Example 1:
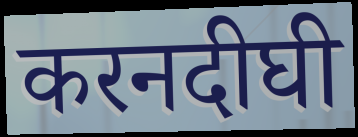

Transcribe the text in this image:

करनदीघी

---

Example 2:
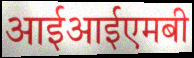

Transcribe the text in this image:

आईआईएमबी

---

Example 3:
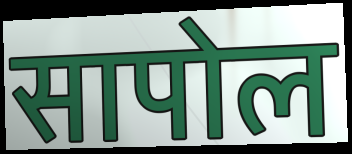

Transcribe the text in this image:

सापोल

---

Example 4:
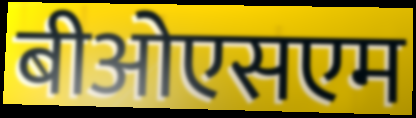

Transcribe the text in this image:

बीओएसएम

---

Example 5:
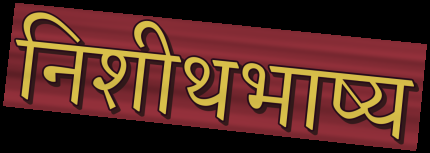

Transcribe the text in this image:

निशीथभाष्य